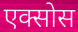
एक्सोस